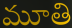
మూతి